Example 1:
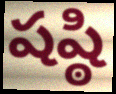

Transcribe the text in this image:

షష్ఠి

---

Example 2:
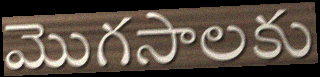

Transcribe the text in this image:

మొగసాలకు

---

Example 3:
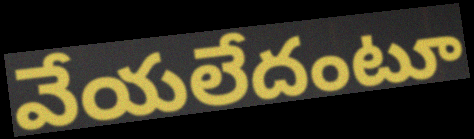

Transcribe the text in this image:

వేయలేదంటూ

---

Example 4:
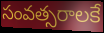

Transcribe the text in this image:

సంవత్సరాలకే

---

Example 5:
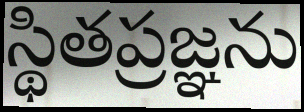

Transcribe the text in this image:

స్థితప్రజ్ఞను